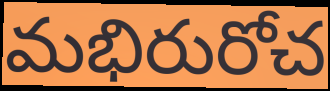
మభిరురోచ